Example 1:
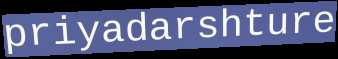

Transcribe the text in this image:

priyadarshture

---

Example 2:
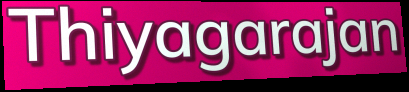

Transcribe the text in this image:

Thiyagarajan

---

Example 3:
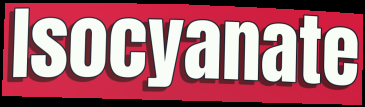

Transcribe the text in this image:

Isocyanate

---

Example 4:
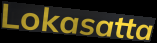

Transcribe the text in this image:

Lokasatta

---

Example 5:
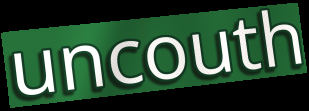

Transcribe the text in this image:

uncouth